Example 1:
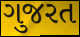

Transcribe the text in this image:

ગુજરત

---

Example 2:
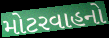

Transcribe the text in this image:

મોટરવાહનો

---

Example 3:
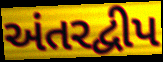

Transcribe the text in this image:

અંતરદ્વીપ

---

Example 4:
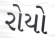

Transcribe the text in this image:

રોયો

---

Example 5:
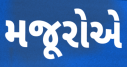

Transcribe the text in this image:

મજૂરોએ